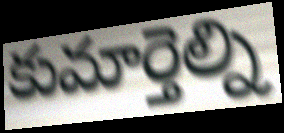
కుమార్తెల్ని